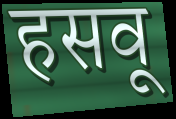
हसवू